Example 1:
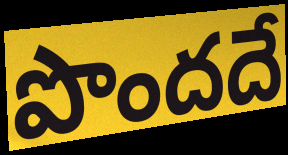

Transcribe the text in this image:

పొందదే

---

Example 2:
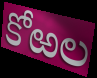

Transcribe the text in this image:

కోఱల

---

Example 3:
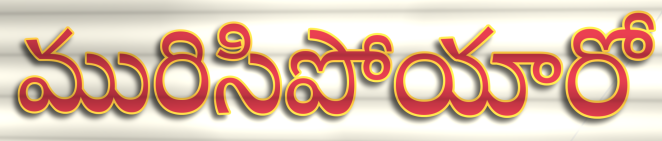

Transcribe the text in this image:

మురిసిపోయారో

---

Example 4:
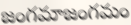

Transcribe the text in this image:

జంగమాజంగమం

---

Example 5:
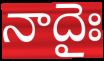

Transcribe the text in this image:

నాదైః